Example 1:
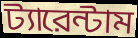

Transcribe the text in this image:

ট্যারেন্টাম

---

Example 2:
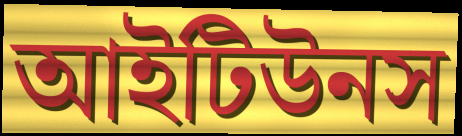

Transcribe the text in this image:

আইটিউনস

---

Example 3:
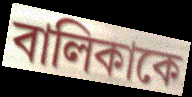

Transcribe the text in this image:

বালিকাকে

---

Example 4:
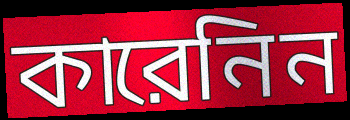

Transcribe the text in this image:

কারেনিন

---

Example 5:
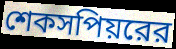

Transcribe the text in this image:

শেকসপিয়রের